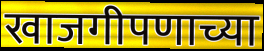
खाजगीपणाच्या